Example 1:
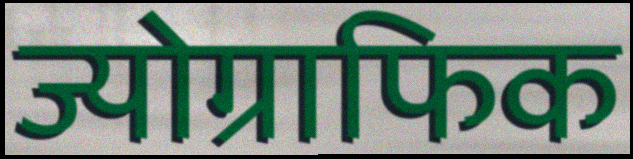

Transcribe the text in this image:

ज्योग्राफिक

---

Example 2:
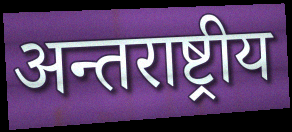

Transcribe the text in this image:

अन्तराष्ट्रीय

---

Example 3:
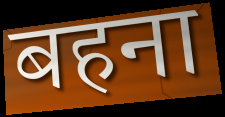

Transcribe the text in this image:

बहना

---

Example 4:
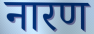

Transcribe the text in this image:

नारण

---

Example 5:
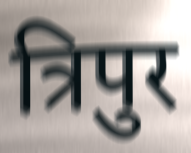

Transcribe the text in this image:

त्रिपुर